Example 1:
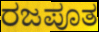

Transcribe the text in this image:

ರಜಪೂತ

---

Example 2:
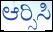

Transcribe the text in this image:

ಆರ್‍ಸಿಸಿ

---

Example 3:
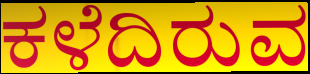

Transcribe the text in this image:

ಕಳೆದಿರುವ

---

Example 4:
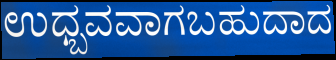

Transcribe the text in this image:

ಉಧ್ಬವವಾಗಬಹುದಾದ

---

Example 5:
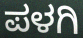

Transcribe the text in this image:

ಪಳಗಿ